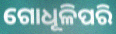
ଗୋଧୂଳିପରି